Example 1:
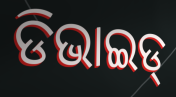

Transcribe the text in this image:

ଡିଭାଇଡ୍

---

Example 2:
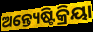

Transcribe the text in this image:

ଅନ୍ତ୍ୟେଷ୍ଟିକ୍ରିୟା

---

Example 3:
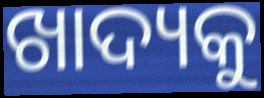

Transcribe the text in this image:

ଖାଦ୍ୟକୁ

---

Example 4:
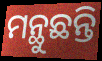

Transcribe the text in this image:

ମନ୍ଥୁଛନ୍ତି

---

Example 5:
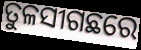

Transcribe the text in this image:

ତୁଳସୀଗଛରେ